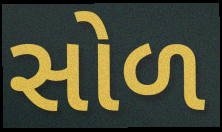
સોળ